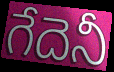
గేదెనీ